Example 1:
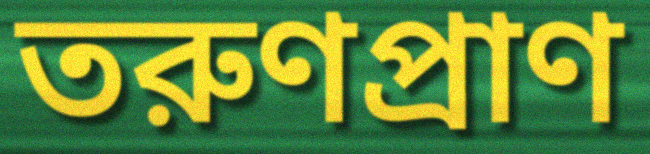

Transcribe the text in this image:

তরুণপ্রাণ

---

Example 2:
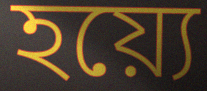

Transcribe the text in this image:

হয়্যে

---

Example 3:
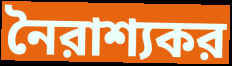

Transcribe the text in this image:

নৈরাশ্যকর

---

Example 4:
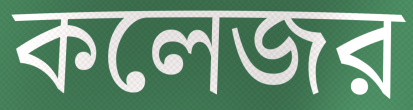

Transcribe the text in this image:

কলেজর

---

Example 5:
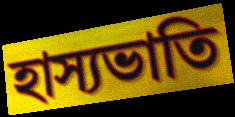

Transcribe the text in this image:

হাস্যভাতি